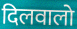
दिलवालो